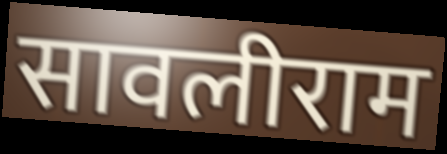
सावलीराम